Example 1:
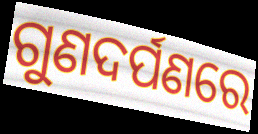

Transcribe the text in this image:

ଗୁଣଦର୍ପଣରେ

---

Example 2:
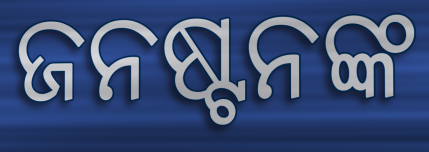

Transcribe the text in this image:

ଜନଷ୍ଟନଙ୍କ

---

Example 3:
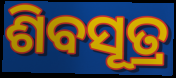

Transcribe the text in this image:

ଶିବସୂତ୍ର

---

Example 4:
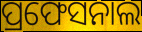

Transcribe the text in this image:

ପ୍ରଫେସନାଲ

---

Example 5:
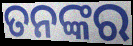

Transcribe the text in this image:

ତନଙ୍କର